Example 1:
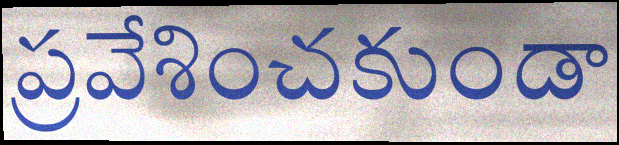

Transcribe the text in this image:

ప్రవేశించకుండా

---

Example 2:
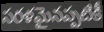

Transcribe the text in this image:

సరళమైనప్పటికీ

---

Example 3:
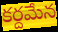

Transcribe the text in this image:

కర్దమేన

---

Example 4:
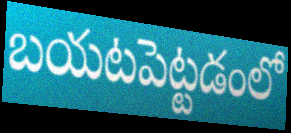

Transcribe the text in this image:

బయటపెట్టడంలో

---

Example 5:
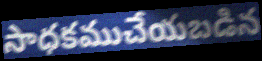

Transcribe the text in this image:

సాధకముచేయబడిన